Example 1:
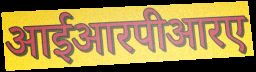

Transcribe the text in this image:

आईआरपीआरए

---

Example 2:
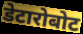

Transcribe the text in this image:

डेटारोबोट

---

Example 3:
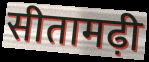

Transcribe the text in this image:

सीतामढ़ी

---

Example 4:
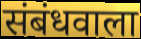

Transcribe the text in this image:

संबंधवाला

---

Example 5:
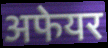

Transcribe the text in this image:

अफेयर